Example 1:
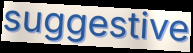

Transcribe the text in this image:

suggestive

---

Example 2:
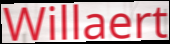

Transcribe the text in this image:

Willaert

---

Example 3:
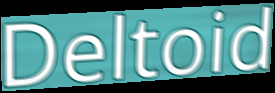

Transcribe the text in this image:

Deltoid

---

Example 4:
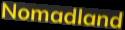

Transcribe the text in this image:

Nomadland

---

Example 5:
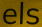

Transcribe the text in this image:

els